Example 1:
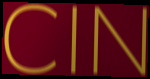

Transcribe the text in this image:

CIN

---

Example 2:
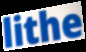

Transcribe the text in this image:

lithe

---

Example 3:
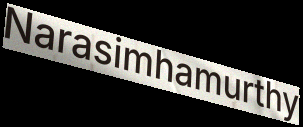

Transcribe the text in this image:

Narasimhamurthy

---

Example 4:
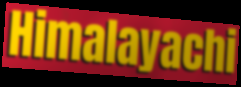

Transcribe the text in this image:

Himalayachi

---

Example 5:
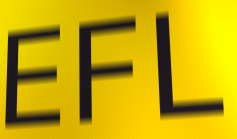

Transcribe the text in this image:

EFL